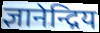
ज्ञानेन्द्रिय